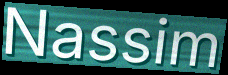
Nassim